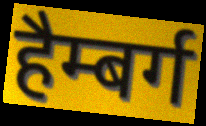
हैम्बर्ग